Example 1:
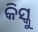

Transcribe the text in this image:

କିସ୍କୁ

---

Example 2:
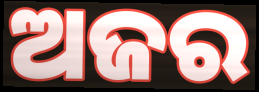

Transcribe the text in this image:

ଅଜର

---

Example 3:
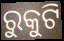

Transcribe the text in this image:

ରୁକୁଟି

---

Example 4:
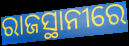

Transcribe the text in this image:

ରାଜସ୍ଥାନୀରେ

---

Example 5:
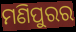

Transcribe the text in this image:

ମଣିପୁରର